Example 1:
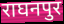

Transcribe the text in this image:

राघनपुर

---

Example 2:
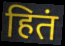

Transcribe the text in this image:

हितं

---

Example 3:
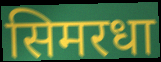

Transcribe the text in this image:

सिमरधा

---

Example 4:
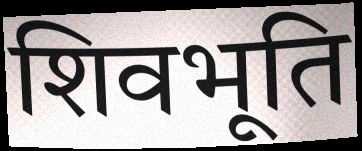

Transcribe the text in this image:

शिवभूति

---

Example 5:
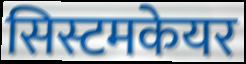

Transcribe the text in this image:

सिस्टमकेयर